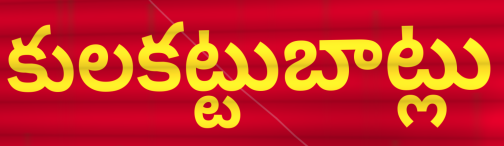
కులకట్టుబాట్లు